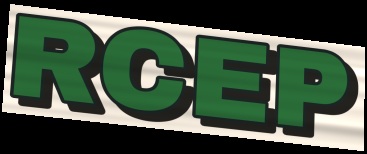
RCEP